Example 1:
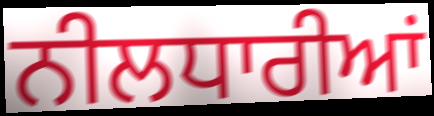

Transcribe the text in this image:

ਨੀਲਧਾਰੀਆਂ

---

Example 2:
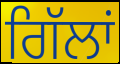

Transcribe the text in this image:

ਗਿੱਲਾਂ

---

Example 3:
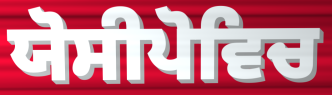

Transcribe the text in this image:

ਯੋਸੀਪੋਵਿਚ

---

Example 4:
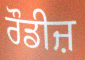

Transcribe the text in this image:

ਰੌਡੀਜ਼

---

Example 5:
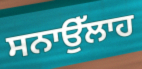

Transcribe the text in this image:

ਸਨਾਉੱਲਾਹ